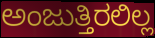
ಅಂಜುತ್ತಿರಲಿಲ್ಲ